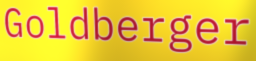
Goldberger